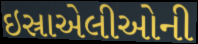
ઇસ્રાએલીઓની